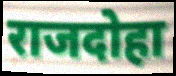
राजदोहा